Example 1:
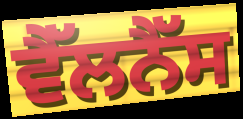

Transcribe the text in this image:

ਵੈੱਲਨੈੱਸ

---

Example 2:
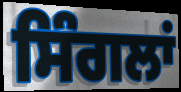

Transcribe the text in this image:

ਸਿੰਗਲਾਂ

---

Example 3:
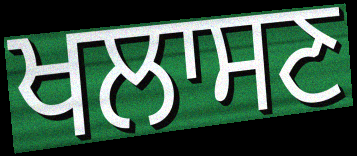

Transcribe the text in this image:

ਖਲਾਸਣ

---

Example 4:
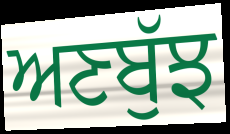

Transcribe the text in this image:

ਅਣਬੁੱਝ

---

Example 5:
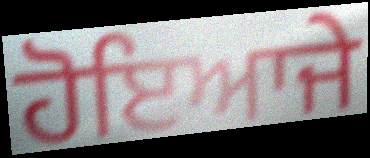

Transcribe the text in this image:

ਹੋਇਆਜੇ